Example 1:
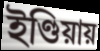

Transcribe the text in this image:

ইণ্ডিয়ায়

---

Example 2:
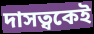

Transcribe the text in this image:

দাসত্বকেই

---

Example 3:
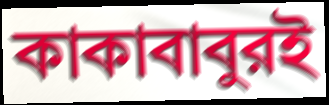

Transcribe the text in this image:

কাকাবাবুরই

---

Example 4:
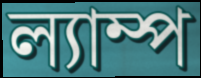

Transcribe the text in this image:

ল্যাম্প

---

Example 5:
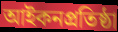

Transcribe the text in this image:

আইকনপ্রতিষ্ঠা